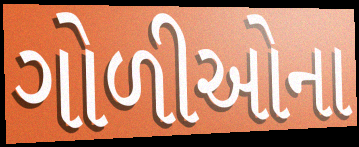
ગોળીઓના